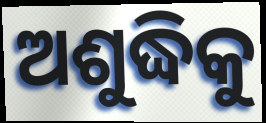
ଅଶୁଦ୍ଧିକୁ